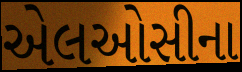
એલઓસીના